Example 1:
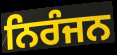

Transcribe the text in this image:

ਨਿਰੰਜਨ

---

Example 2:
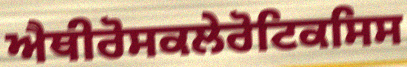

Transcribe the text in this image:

ਐਥੀਰੋਸਕਲੇਰੋਟਿਕਸਿਸ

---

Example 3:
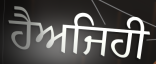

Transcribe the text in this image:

ਹੈਅਜਿਹੀ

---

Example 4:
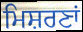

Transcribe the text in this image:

ਮਿਸ਼ਰਣਾਂ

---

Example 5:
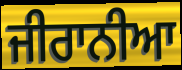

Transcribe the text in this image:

ਜੀਰਾਨੀਆ